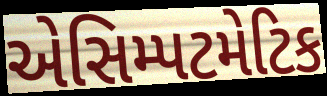
એસિમ્પટમેટિક